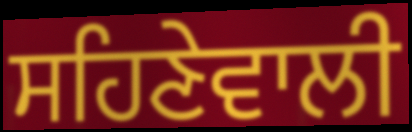
ਸਹਿਣੇਵਾਲੀ